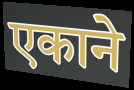
एकाने